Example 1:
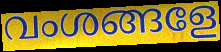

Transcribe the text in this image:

വംശങ്ങളേ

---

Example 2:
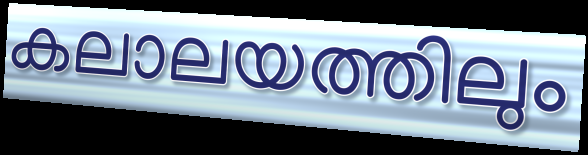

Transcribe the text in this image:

കലാലയത്തിലും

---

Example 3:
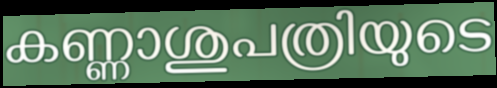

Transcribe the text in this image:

കണ്ണാശുപത്രിയുടെ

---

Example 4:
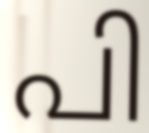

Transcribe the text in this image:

പി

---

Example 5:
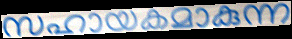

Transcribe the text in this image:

സഹായകമാകുന്ന